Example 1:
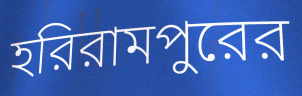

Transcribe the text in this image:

হরিরামপুরের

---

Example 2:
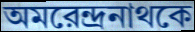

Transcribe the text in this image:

অমরেন্দ্রনাথকে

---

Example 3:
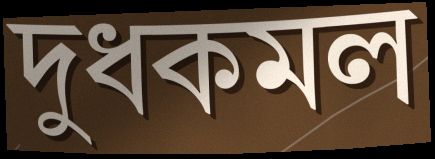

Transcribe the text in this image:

দুধকমল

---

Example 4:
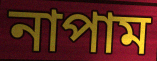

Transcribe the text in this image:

নাপাম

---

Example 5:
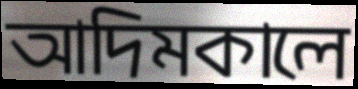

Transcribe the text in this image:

আদিমকালে